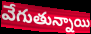
వేగుతున్నాయి